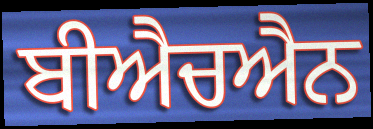
ਬੀਐਚਐਨ